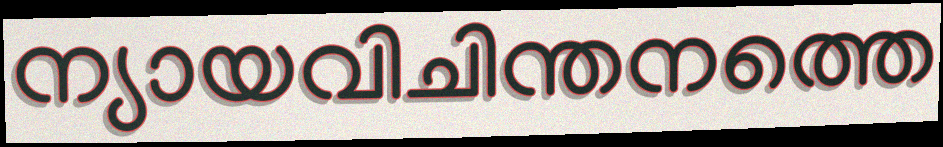
ന്യായവിചിന്തനത്തെ